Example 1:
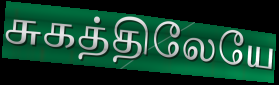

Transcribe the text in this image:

சுகத்திலேயே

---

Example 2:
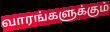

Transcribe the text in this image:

வாரங்களுக்கும்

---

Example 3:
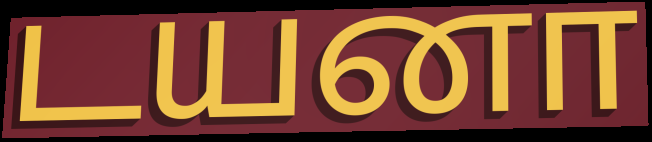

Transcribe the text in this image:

டயனா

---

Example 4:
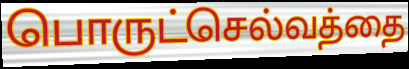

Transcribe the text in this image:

பொருட்செல்வத்தை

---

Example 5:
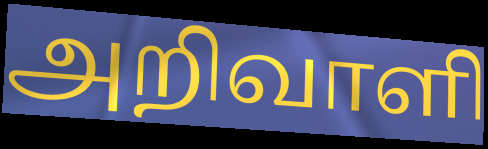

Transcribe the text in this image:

அறிவாளி